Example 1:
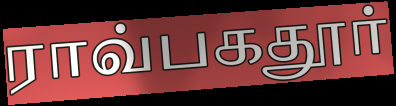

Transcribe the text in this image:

ராவ்பகதூர்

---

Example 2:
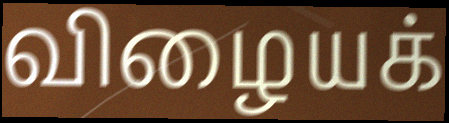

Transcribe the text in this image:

விழையக்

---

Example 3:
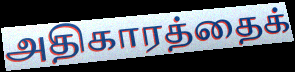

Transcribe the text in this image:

அதிகாரத்தைக்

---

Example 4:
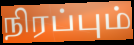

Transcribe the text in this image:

நிரப்பும்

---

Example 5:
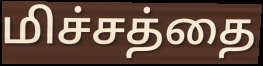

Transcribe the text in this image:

மிச்சத்தை